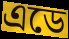
এডে